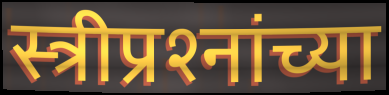
स्त्रीप्रश्नांच्या